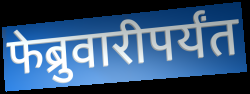
फेब्रुवारीपर्यंत